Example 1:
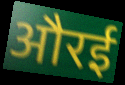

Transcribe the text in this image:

औरई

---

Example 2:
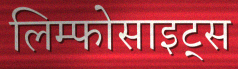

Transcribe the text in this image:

लिम्फोसाइट्स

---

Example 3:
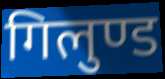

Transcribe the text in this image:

गिलुण्ड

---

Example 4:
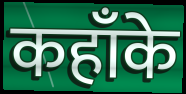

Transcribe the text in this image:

कहाँके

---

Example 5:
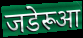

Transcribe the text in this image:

जडेरूआ